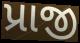
પ્રાજી